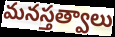
మనస్తత్వాలు